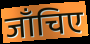
जाँचिए